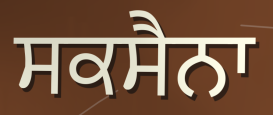
ਸਕਸੈਨਾ